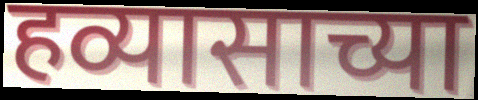
हव्यासाच्या